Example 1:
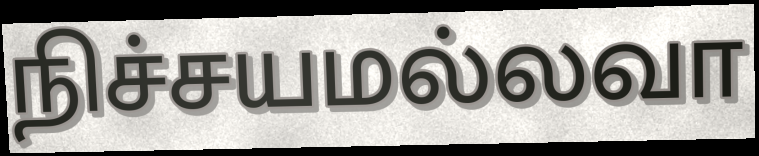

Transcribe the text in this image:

நிச்சயமல்லவா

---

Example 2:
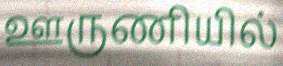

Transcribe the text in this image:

ஊருணியில்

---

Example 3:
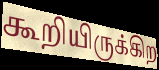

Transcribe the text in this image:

கூறியிருக்கிற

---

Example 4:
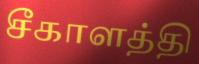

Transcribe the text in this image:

சீகாளத்தி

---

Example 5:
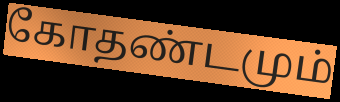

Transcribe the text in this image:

கோதண்டமும்